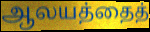
ஆலயத்தைத்